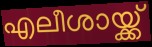
എലീശായ്ക്ക്